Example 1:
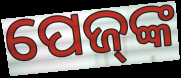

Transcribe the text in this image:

ପେଜ୍‌ଙ୍କ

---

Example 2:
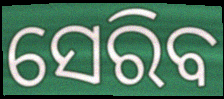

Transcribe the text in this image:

ସେରିବ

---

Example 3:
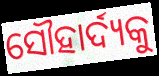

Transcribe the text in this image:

ସୌହାର୍ଦ୍ୟକୁ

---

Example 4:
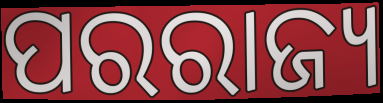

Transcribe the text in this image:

ପରରାଜ୍ୟ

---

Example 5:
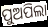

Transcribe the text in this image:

ପୁଅପିଲା